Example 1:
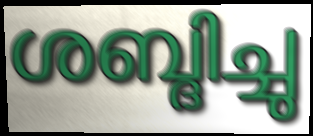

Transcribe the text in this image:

ശബ്ദിച്ചു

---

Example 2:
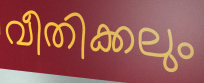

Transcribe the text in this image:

വീതിക്കലും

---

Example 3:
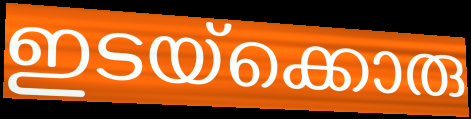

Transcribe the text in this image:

ഇടയ്‌ക്കൊരു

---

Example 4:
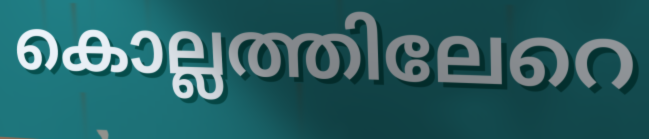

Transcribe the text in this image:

കൊല്ലത്തിലേറെ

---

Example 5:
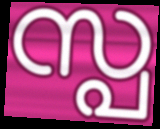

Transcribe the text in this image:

സ്പ